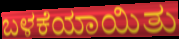
ಬಳಕೆಯಾಯಿತು